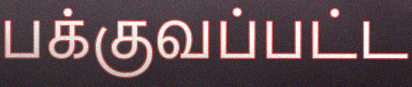
பக்குவப்பட்ட